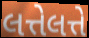
લત્તેલત્તે